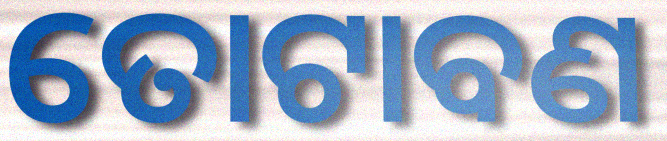
ତୋଟାବଣ